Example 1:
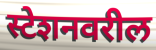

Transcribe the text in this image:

स्टेशनवरील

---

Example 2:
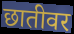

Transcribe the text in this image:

छातीवर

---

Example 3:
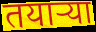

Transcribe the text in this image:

तयाऱ्या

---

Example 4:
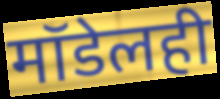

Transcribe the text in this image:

मॉडेलही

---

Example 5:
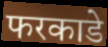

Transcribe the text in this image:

फरकाडे